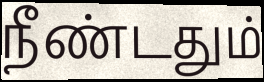
நீண்டதும்